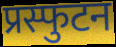
प्रस्‍फुटन